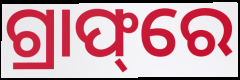
ଗ୍ରାଫ୍‌ରେ